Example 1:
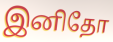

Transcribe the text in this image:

இனிதோ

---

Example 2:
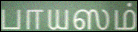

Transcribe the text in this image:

பாயஸம்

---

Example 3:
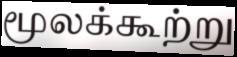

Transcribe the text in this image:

மூலக்கூற்று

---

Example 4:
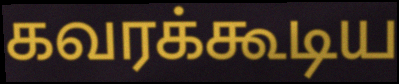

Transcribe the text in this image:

கவரக்கூடிய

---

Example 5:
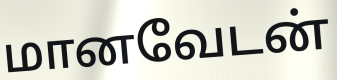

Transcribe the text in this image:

மானவேடன்